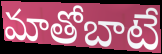
మాతోబాటే